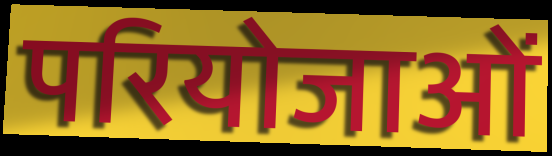
परियोजाओं